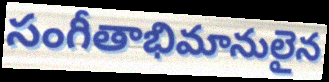
సంగీతాభిమానులైన